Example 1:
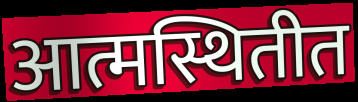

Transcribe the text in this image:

आत्मस्थितीत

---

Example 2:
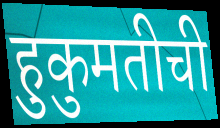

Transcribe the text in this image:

हुकुमतीची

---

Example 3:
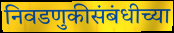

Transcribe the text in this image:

निवडणुकीसंबंधीच्या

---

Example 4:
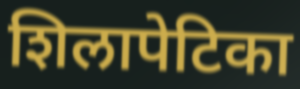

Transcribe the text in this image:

शिलापेटिका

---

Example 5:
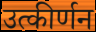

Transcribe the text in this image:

उत्कीर्णन